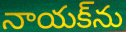
నాయక్‌ను